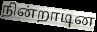
நின்றாடின